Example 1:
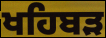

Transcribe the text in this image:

ਖਹਿਬੜ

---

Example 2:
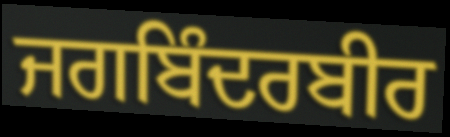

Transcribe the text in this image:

ਜਗਬਿੰਦਰਬੀਰ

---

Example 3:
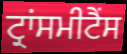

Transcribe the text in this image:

ਟ੍ਰਾਂਸਮੀਟੈਂਸ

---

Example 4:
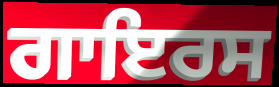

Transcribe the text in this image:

ਗਾਇਰਸ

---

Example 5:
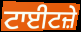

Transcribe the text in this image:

ਟਾਈਟਜ਼ੇ